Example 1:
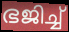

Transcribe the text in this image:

ഭജിച്ച്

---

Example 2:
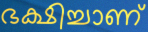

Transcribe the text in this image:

ഭക്ഷിച്ചാണ്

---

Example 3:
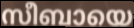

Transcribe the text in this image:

സീബായെ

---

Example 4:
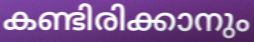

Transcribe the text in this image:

കണ്ടിരിക്കാനും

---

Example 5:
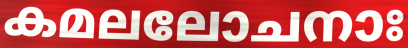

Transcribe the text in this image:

കമലലോചനാഃ